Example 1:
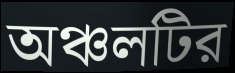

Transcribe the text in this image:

অঞ্চলটির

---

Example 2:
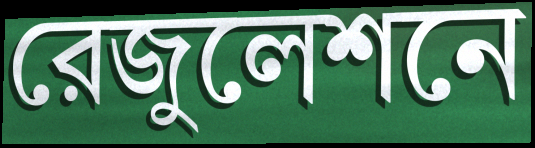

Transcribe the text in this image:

রেজুলেশনে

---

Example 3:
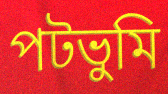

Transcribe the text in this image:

পটভুমি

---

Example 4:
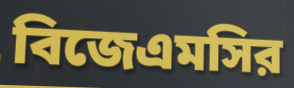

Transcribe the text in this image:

বিজেএমসির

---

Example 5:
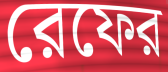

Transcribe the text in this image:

রেফের